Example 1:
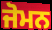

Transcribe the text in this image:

ਜੋਮਨ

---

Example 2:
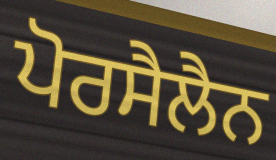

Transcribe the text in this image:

ਪੋਰਸੈਲੈਨ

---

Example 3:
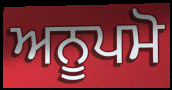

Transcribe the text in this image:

ਅਨੂਪਮੋ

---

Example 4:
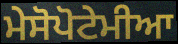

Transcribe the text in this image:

ਮੇਸੋਪੋਟੇਮੀਆ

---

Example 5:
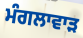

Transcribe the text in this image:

ਮੰਗਲਾਵਾੜ